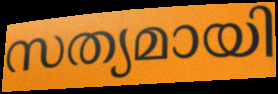
സത്യമായി